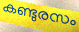
കണ്ടുരസം